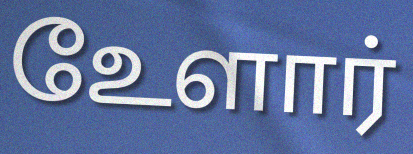
உேளார்